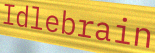
Idlebrain